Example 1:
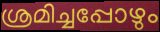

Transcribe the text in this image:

ശ്രമിച്ചപ്പോഴും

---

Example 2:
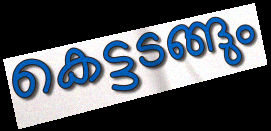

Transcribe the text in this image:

കെട്ടടങ്ങും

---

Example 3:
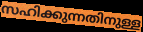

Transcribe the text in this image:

സഹിക്കുന്നതിനുള്ള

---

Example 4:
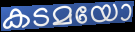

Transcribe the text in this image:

കടമയോ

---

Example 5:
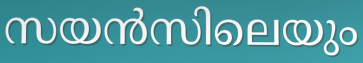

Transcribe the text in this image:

സയൻസിലെയും